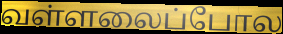
வள்ளலைப்போல